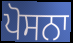
ਪੋਸਨਾ